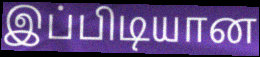
இப்பிடியான